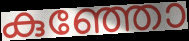
കുഞ്ഞോ